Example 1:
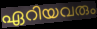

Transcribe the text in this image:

ഏറിയവരും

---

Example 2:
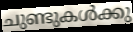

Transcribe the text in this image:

ചുണ്ടുകൾക്കു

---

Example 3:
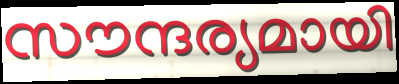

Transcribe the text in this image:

സൗന്ദര്യമായി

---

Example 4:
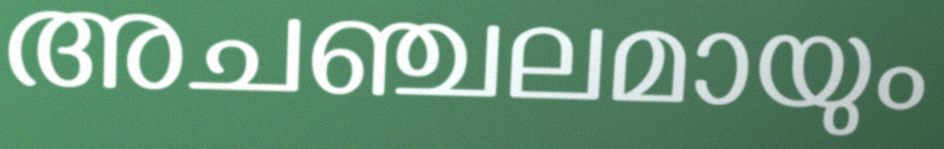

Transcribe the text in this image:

അചഞ്ചലമായും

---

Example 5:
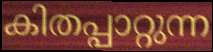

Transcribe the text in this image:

കിതപ്പാറ്റുന്ന